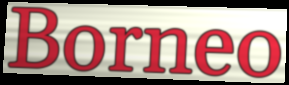
Borneo